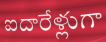
ఐదారేళ్లుగా